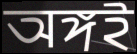
অঙ্গই